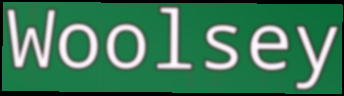
Woolsey